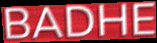
BADHE